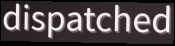
dispatched